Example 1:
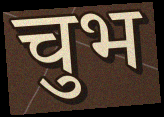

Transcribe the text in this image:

चुभ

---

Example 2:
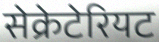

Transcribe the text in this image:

सेक्रेटेरियट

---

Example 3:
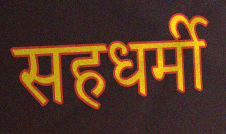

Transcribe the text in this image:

सहधर्मी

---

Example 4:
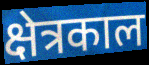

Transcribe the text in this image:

क्षेत्रकाल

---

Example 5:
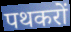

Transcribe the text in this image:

पथकरों